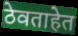
ठेवताहेत